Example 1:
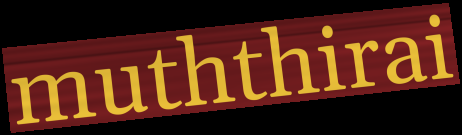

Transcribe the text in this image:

muththirai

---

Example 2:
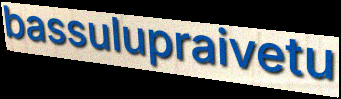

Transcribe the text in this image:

bassulupraivetu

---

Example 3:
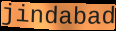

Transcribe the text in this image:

jindabad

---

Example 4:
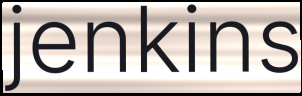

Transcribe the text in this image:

jenkins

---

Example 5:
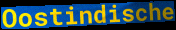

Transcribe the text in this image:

Oostindische